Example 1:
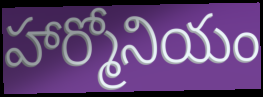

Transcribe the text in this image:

హార్మోనియం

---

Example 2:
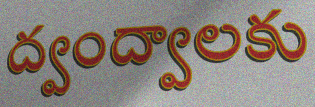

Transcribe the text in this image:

ద్వంద్వాలకు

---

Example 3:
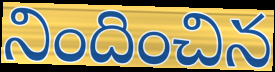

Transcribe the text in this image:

నిందించిన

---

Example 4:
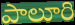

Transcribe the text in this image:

పాలూరి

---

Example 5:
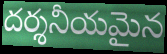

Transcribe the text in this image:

దర్శనీయమైన